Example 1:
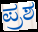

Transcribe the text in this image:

ಪ್ರಶ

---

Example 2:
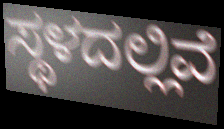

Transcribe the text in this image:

ಸ್ಥಳದಲ್ಲಿವೆ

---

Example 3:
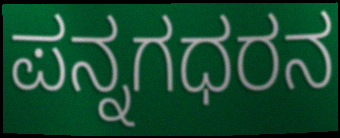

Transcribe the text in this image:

ಪನ್ನಗಧರನ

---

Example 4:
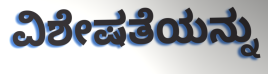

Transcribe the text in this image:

ವಿಶೇಷತೆಯನ್ನು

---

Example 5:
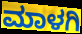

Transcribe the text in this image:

ಮಾಳಗಿ